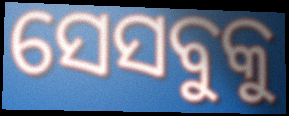
ସେସବୁକୁ